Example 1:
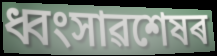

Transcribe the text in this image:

ধ্বংসাৱশেষৰ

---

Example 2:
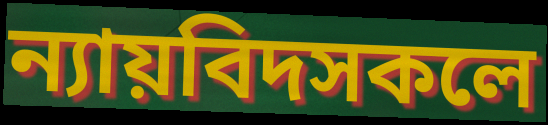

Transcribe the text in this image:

ন্যায়বিদসকলে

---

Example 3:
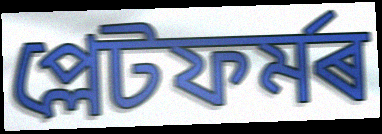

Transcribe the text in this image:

প্লেটফৰ্মৰ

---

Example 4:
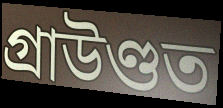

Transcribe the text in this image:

গ্ৰাউণ্ডত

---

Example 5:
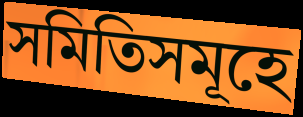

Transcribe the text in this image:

সমিতিসমূহে